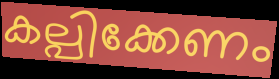
കല്പിക്കേണം